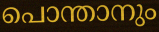
പൊന്താനും